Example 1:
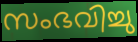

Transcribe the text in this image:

സംഭവിച്ചു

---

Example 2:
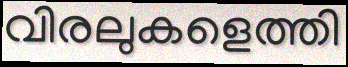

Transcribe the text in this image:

വിരലുകളെത്തി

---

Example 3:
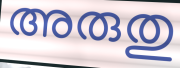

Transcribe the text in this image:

അരുതു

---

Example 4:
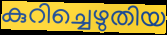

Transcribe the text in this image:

കുറിച്ചെഴുതിയ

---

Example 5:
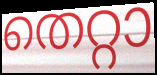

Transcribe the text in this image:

തെറ്റാ